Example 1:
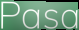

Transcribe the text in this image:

Pasa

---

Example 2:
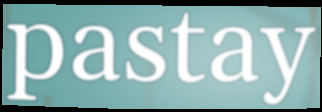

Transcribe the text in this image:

pastay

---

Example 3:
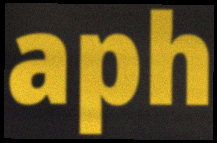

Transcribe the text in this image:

aph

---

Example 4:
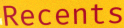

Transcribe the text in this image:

Recents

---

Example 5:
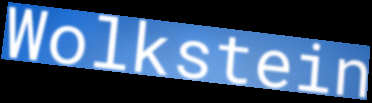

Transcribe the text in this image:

Wolkstein